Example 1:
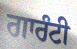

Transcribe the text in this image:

ਗਾਰੰਟੀ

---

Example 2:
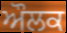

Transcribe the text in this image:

ਔਲਕ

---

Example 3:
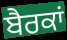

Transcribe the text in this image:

ਬੈਰਕਾਂ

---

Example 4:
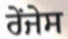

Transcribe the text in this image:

ਰੇਂਜੇਸ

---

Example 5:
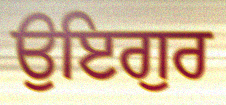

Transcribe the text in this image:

ਉਇਗੁਰ